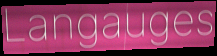
Langauges